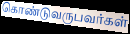
கொண்டுவருபவர்கள்